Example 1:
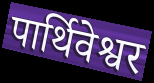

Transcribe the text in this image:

पार्थिवेश्वर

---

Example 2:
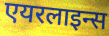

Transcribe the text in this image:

एयरलाइन्स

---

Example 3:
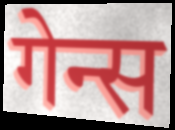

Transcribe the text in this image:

गेन्स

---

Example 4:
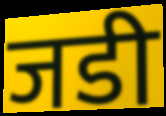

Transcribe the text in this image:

जडी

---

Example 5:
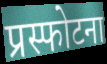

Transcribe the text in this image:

प्रस्फोटना